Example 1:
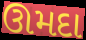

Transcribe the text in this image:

ઊમદા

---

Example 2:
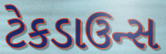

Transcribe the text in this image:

ટેકડાઉન્સ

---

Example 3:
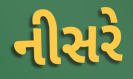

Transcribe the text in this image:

નીસરે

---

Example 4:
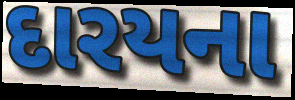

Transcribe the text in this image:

દારયના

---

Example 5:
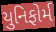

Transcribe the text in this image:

યુનિફોર્મ